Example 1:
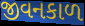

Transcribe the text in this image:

જીવનકાળ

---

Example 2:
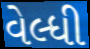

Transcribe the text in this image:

વેલ્ધી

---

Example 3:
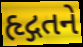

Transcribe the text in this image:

હૃદ્ગતને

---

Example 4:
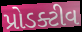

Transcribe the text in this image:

પ્રોડક્ટીવ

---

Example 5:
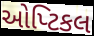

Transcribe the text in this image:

ઓપ્ટિકલ